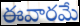
ఈవారమే